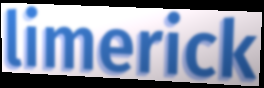
limerick